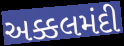
અક્કલમંદી